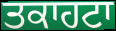
ਤਕਾਹਟਾ